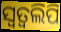
ସ୍ୱତ୍ୱଲିପି